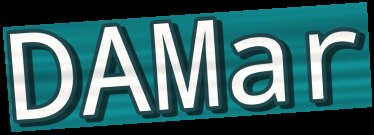
DAMar